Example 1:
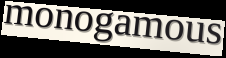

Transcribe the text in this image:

monogamous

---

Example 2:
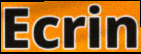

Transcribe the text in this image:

Ecrin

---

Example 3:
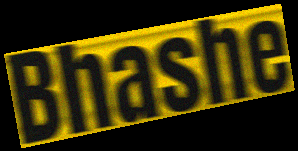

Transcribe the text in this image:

Bhashe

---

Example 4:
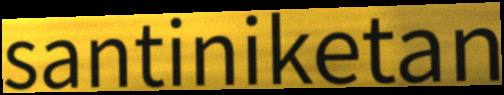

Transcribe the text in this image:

santiniketan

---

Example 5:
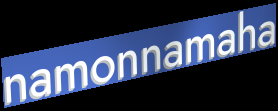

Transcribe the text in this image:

namonnamaha